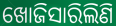
ଖୋଜିସାରିଲିଣି